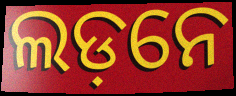
ଲଡ଼ନେ